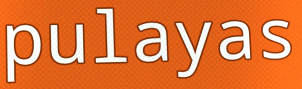
pulayas